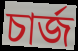
চার্জ